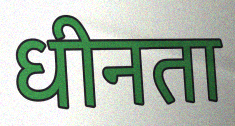
धीनता